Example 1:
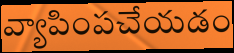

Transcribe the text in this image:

వ్యాపింపచేయడం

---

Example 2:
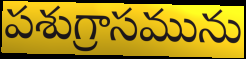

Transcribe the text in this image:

పశుగ్రాసమును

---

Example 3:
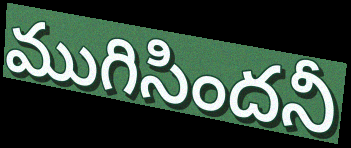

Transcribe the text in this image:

ముగిసిందనీ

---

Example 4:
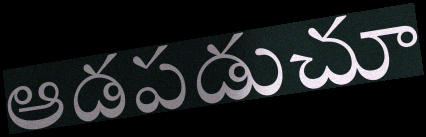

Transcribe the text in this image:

ఆడపడుచూ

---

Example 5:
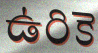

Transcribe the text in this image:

ఉరికె